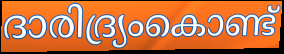
ദാരിദ്ര്യംകൊണ്ട്